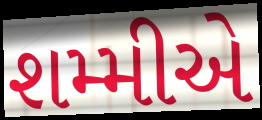
શમ્મીએ